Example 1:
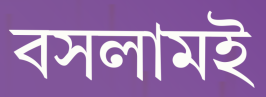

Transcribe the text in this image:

বসলামই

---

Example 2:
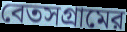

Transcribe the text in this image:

বেতসগ্রামের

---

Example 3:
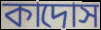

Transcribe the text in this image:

কাদোস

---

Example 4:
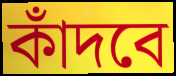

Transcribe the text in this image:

কাঁদবে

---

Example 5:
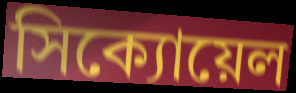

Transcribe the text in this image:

সিক্যোয়েল